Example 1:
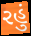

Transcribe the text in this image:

રહું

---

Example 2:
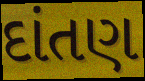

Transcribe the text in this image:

દાંતણ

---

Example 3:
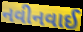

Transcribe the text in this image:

નવીનવાઈ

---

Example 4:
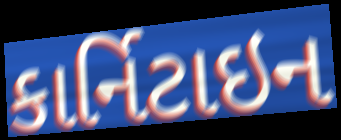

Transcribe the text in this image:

કાર્નિટાઇન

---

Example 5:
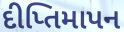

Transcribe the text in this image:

દીપ્તિમાપન